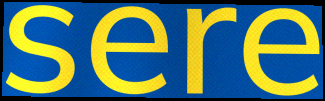
sere